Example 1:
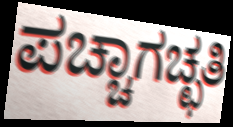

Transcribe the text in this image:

ಪಚ್ಚಾಗಚ್ಛತಿ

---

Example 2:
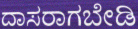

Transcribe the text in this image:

ದಾಸರಾಗಬೇಡಿ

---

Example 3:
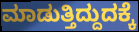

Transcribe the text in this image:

ಮಾಡುತ್ತಿದ್ದುದಕ್ಕೆ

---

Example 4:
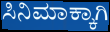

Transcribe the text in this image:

ಸಿನಿಮಾಕ್ಕಾಗಿ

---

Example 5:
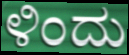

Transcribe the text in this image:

ಳಿಂದು